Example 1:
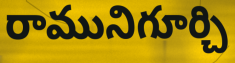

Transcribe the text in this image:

రామునిగూర్చి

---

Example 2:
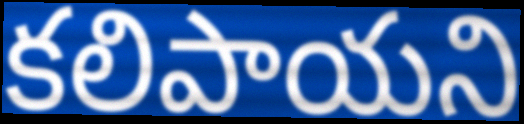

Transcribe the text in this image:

కలిపాయని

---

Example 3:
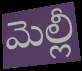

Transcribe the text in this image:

మెల్లీ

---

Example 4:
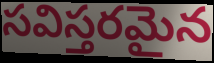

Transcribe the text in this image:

సవిస్తరమైన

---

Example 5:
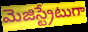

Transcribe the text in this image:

మెజిస్ట్రేటుగా